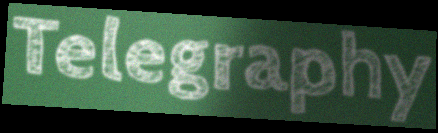
Telegraphy